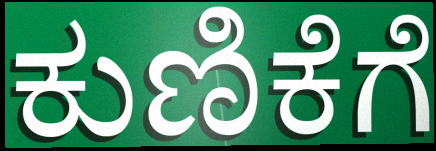
ಕುಣಿಕೆಗೆ